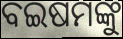
ବଇଷମଙ୍କୁ